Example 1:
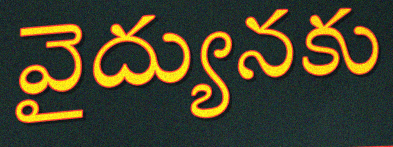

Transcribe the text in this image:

వైద్యునకు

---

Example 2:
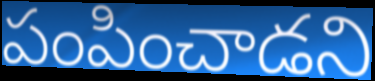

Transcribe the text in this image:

పంపించాడని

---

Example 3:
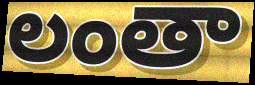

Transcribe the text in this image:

లంతా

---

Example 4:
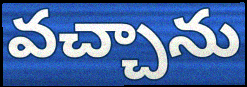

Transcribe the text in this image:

వచ్చాను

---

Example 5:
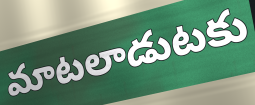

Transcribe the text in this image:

మాటలాడుటకు